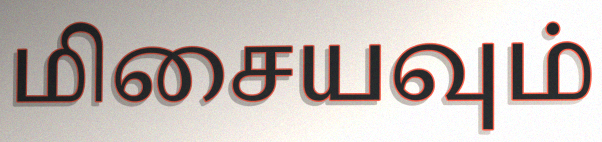
மிசையவும்